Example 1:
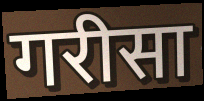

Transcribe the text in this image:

गरीसा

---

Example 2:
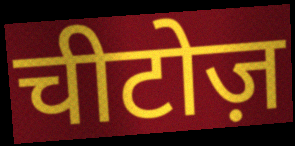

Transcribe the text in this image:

चीटोज़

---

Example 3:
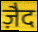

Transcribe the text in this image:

ज़ैद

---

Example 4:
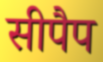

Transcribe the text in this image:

सीपैप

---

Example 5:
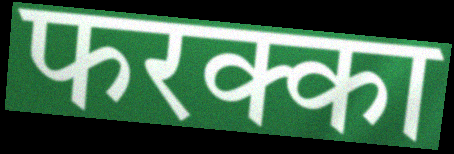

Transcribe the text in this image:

फरक्का